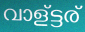
വാള്ട്ടര്